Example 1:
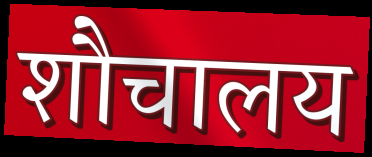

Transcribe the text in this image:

शौचालय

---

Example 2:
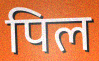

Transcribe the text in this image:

पिल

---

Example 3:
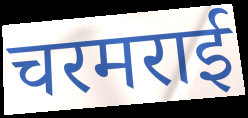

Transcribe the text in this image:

चरमराई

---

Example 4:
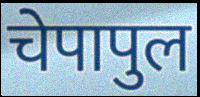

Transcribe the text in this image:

चेपापुल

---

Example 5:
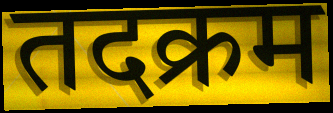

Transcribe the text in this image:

तदक्रम